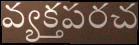
వ్యక్తపరచ